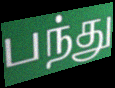
பந்து